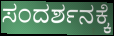
ಸಂದರ್ಶನಕ್ಕೆ